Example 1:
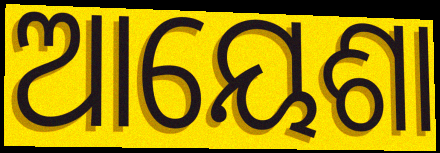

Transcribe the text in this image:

ଆୟେଶା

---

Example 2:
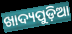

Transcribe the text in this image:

ଖାଦ୍ୟପୁଡ଼ିଆ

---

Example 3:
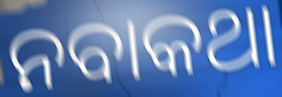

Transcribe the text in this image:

ନବାକଥା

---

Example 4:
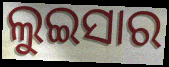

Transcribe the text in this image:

ଲୁଇସାର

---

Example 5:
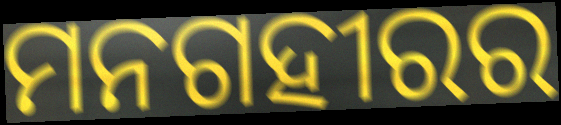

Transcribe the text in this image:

ମନଗହୀରର